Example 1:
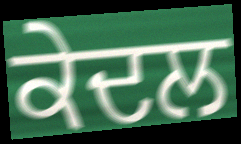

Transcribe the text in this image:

ਕੇਦਲ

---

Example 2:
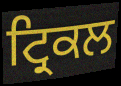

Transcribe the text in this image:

ਟ੍ਰਿਕਲ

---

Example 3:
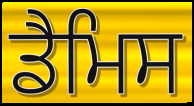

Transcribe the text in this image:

ਡੈਮਿਸ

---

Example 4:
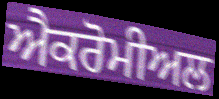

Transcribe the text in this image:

ਐਕਰੋਮੀਅਲ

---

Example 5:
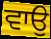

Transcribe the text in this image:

ਵਾਉ